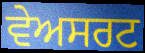
ਵੇਅਸਰਟ